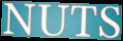
NUTS